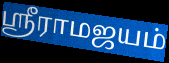
ஸ்ரீராமஜயம்